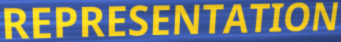
REPRESENTATION